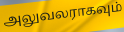
அலுவலராகவும்